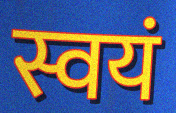
स्वयं